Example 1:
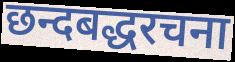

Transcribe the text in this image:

छन्दबद्धरचना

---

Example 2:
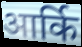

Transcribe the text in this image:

आर्कि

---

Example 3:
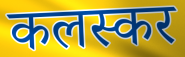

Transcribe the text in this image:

कलस्कर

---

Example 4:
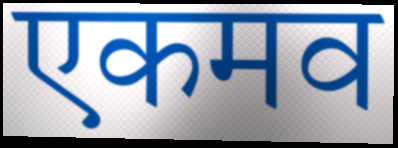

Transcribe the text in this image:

एकमव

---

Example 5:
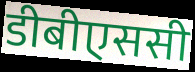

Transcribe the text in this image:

डीबीएससी